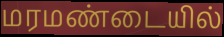
மரமண்டையில்